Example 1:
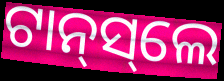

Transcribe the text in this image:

ଟାନ୍‌ସ୍‌ଲେ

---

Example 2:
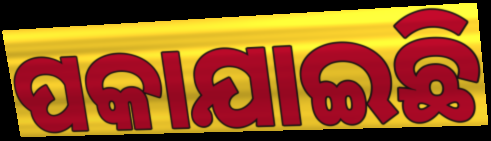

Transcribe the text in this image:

ପକାଯାଇଛି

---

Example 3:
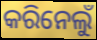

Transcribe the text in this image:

କରିନେଲୁଁ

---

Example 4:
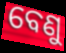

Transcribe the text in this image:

ବେଣୁ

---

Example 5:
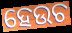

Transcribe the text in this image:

ହେଉଚ